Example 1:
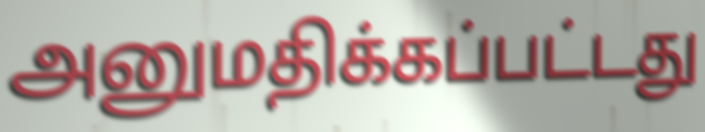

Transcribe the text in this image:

அனுமதிக்கப்பட்டது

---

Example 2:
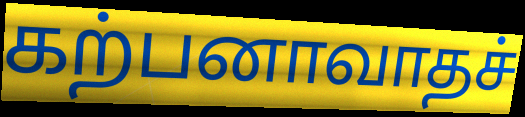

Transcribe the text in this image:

கற்பனாவாதச்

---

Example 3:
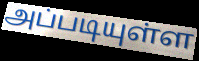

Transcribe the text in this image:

அப்படியுள்ள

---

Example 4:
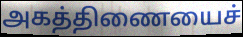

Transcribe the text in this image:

அகத்திணையைச்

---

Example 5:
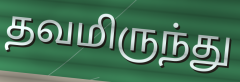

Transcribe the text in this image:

தவமிருந்து